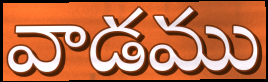
వాడము